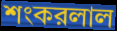
শংকরলাল